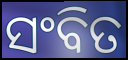
ସଂବିତ